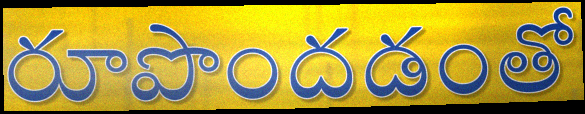
రూపొందడంతో